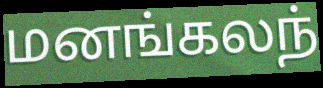
மனங்கலந்